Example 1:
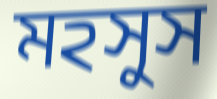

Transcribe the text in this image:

মহসুস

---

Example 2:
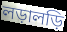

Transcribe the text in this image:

লড়ালড়ি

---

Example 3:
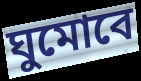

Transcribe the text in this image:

ঘুমোবে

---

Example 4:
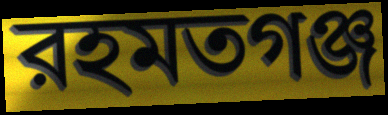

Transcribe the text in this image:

রহমতগঞ্জ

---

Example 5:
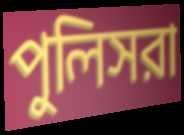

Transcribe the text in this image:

পুলিসরা